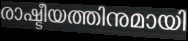
രാഷ്ടീയത്തിനുമായി